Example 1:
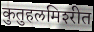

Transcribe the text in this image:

कुतुहलमिश्रीत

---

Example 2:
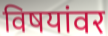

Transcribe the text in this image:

विषयांवर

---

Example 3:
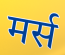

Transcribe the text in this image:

मर्स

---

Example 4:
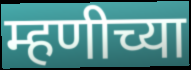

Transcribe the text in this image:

म्हणीच्या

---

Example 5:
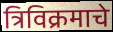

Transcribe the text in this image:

त्रिविक्रमाचे